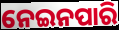
ନେଇନପାରି